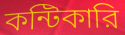
কন্টিকারি